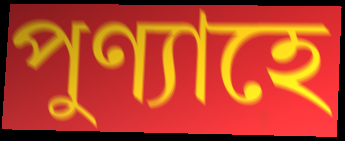
পুণ্যাহে